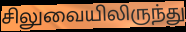
சிலுவையிலிருந்து